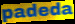
padeda